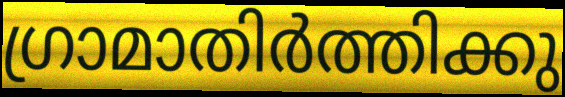
ഗ്രാമാതിർത്തിക്കു